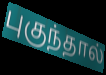
புகுந்தால்